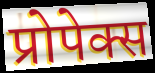
प्रोपेक्स